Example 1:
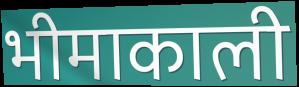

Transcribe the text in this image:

भीमाकाली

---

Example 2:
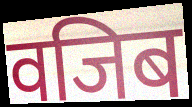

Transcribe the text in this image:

वजिब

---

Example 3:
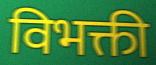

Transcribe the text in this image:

विभक्ती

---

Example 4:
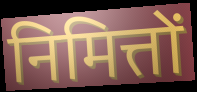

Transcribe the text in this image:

निमित्तों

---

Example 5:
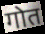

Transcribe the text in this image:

गोत